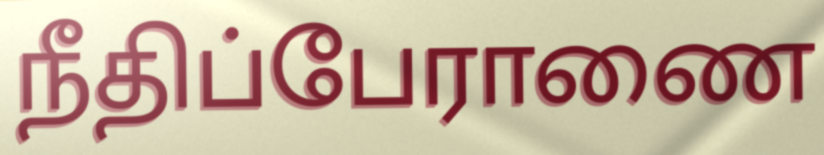
நீதிப்பேராணை